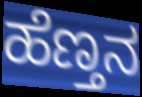
ಹೆಣ್ತನ